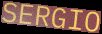
SERGIO